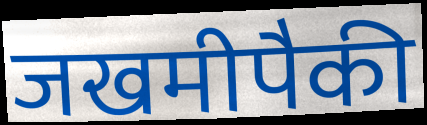
जखमीपैकी